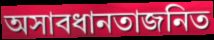
অসাবধানতাজনিত